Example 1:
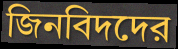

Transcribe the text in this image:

জিনবিদদের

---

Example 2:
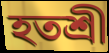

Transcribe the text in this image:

হতশ্রী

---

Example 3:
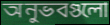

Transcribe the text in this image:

অনুভবগুলো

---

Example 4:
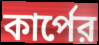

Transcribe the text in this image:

কার্পের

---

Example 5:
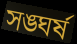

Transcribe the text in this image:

সঙ্ঘর্ষ